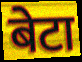
बेटा